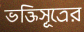
ভক্তিসূত্রের